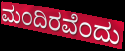
ಮಂದಿರವೆಂದು